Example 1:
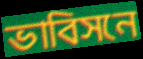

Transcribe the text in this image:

ভাবিসনে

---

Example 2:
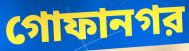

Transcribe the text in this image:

গোফানগর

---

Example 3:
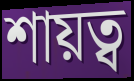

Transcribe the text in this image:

শায়ত্ব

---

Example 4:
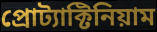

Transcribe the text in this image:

প্রোট্যাক্টিনিয়াম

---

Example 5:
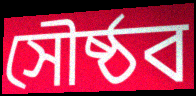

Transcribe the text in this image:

সৌষ্ঠব